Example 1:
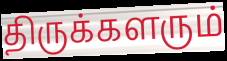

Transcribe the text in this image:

திருக்களரும்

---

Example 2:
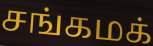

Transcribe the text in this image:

சங்கமக்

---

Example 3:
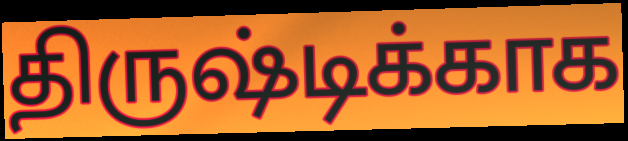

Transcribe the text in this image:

திருஷ்டிக்காக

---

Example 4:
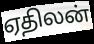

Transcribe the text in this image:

ஏதிலன்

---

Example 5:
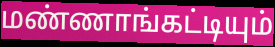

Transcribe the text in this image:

மண்ணாங்கட்டியும்